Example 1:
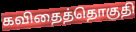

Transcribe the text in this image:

கவிதைத்தொகுதி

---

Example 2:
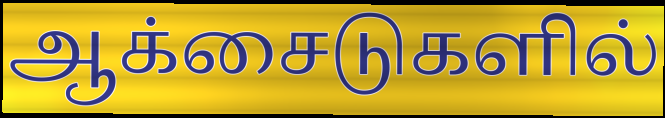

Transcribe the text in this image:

ஆக்சைடுகளில்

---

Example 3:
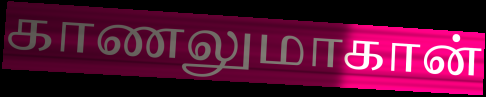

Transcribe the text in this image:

காணலுமாகான்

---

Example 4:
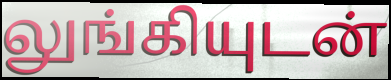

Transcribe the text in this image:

லுங்கியுடன்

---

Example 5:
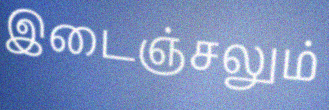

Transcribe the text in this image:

இடைஞ்சலும்